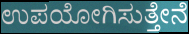
ಉಪಯೋಗಿಸುತ್ತೇನೆ